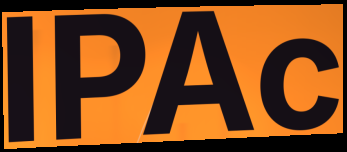
IPAc